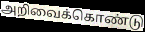
அறிவைக்கொண்டு